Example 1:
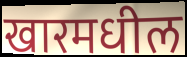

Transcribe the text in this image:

खारमधील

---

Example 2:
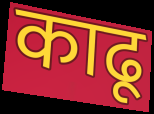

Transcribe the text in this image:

काढू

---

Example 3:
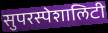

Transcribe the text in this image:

सुपरस्पेशालिटी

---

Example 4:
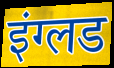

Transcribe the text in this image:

इंग्लड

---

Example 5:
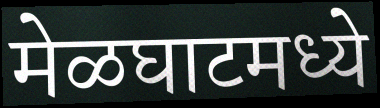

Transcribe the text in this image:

मेळघाटमध्ये